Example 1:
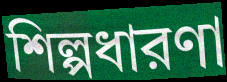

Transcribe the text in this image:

শিল্পধারণা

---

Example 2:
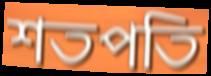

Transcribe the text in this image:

শতপতি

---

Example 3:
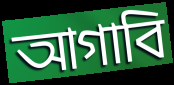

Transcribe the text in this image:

আগাবি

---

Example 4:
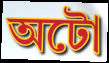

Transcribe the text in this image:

অটো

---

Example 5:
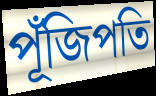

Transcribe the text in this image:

পূঁজিপতি